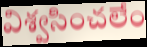
విశ్వసించలేం